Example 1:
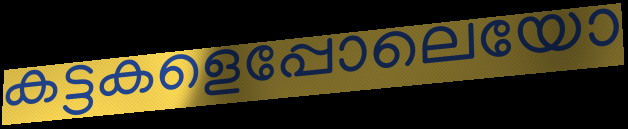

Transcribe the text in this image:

കട്ടകളെപ്പോലെയോ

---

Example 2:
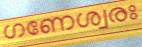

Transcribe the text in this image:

ഗണേശ്വരഃ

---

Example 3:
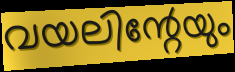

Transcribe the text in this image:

വയലിന്റേയും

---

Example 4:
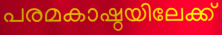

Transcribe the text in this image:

പരമകാഷ്ഠയിലേക്ക്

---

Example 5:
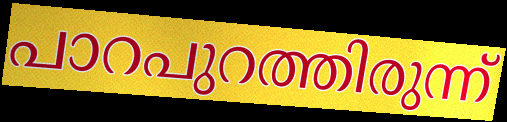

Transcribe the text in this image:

പാറപുറത്തിരുന്ന്